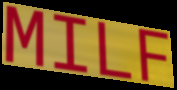
MILF